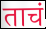
ताचं